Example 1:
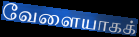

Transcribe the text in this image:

வேளையாகக்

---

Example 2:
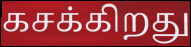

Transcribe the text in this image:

கசக்கிறது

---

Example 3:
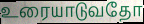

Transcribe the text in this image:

உரையாடுவதோ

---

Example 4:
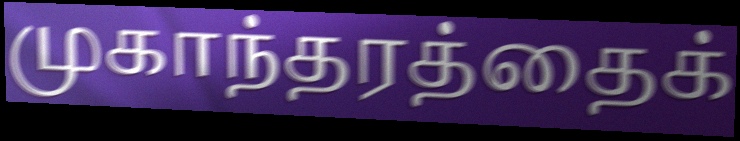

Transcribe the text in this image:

முகாந்தரத்தைக்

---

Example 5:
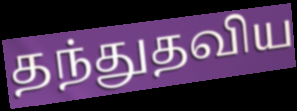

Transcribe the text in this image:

தந்துதவிய